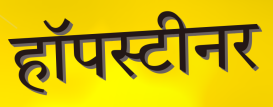
हॉपस्टीनर